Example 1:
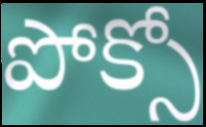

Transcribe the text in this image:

పోక్సో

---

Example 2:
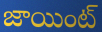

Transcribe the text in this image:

జాయింట్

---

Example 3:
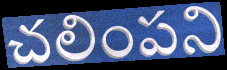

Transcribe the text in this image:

చలింపని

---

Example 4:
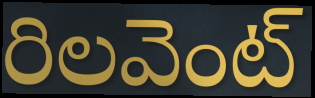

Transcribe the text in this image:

రిలవెంట్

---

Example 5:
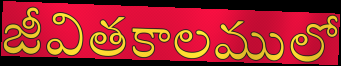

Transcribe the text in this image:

జీవితకాలములో